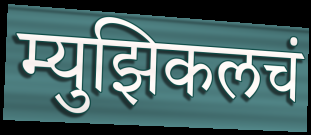
म्युझिकलचं